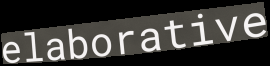
elaborative